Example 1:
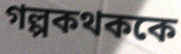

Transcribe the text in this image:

গল্পকথককে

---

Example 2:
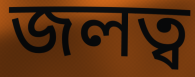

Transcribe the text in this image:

জলত্ব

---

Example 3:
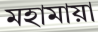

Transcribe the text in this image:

মহামায়া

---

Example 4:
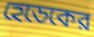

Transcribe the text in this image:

হেডেকের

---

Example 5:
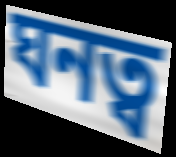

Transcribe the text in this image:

ঘনত্ব